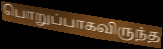
பொறுப்பாகவிருந்த